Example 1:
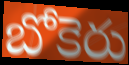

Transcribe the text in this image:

బోకెరు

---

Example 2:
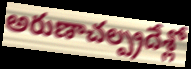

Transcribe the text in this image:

అరుణాచల్ప్రదేశ్లో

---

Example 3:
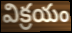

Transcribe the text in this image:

విక్రయం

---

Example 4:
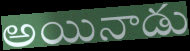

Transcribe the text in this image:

అయినాడు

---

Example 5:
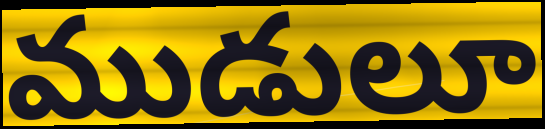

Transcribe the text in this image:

ముడులూ